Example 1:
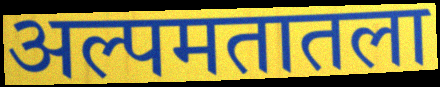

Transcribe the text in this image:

अल्पमतातला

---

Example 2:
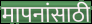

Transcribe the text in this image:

मापनांसाठी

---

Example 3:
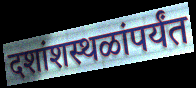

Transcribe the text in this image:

दशांशस्थळांपर्यंत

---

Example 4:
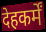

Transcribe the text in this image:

देहकर्में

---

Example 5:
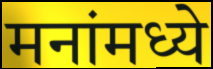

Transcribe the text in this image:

मनांमध्ये